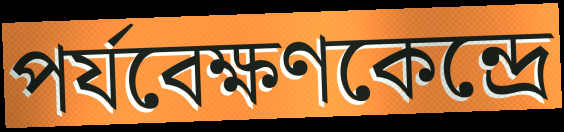
পর্যবেক্ষণকেন্দ্রে